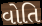
વોતિ